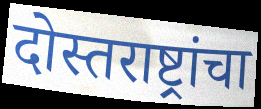
दोस्तराष्ट्रांचा